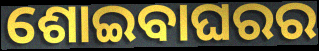
ଶୋଇବାଘରର